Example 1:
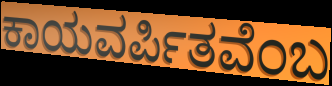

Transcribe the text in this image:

ಕಾಯವರ್ಪಿತವೆಂಬ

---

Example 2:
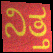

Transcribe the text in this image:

ನಿತ್ತ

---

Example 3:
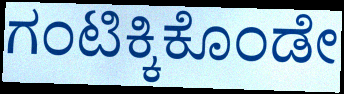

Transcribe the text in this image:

ಗಂಟಿಕ್ಕಿಕೊಂಡೇ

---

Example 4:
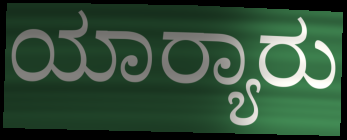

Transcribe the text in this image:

ಯಾರ್‍ಯಾರು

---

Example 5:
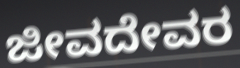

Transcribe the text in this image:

ಜೀವದೇವರ